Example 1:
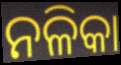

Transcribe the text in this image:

ନଳିକା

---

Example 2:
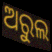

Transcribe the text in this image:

ଅରୁଲ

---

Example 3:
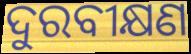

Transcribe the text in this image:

ଦୁରବୀକ୍ଷଣ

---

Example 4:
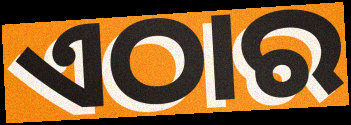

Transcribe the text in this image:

ଏଠାର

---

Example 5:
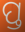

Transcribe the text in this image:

ପ୍ତ